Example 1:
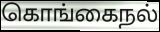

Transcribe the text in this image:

கொங்கைநல்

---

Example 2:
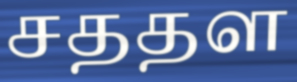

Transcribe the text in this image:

சததள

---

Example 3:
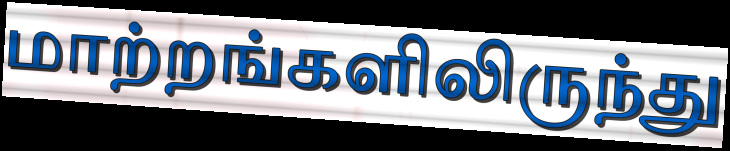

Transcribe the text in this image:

மாற்றங்களிலிருந்து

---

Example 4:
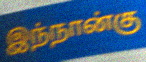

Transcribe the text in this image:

இந்நான்கு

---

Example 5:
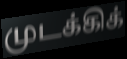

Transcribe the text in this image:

முடக்கிக்